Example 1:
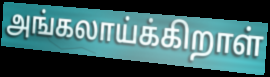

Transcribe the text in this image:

அங்கலாய்க்கிறாள்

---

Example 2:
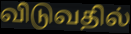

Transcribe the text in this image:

விடுவதில்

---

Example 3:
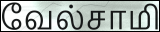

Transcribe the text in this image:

வேல்சாமி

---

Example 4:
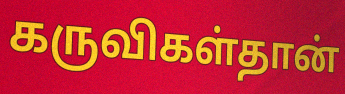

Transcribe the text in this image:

கருவிகள்தான்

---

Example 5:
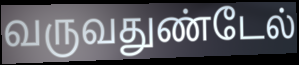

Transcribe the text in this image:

வருவதுண்டேல்